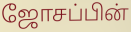
ஜோசப்பின்